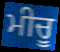
ਮੀਚੂ